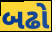
બઢો